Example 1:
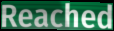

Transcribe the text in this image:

Reached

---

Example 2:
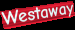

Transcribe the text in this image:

Westaway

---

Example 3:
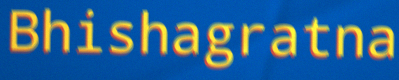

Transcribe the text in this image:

Bhishagratna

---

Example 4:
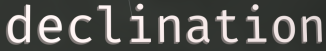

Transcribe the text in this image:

declination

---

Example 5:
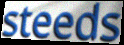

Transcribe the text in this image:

steeds